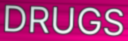
DRUGS